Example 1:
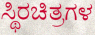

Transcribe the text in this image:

ಸ್ಥಿರಚಿತ್ರಗಳ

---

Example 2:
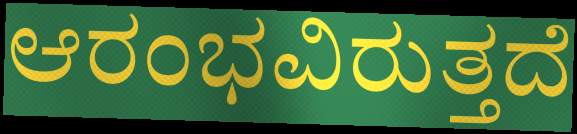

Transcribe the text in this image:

ಆರಂಭವಿರುತ್ತದೆ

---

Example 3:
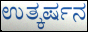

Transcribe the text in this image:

ಉತ್ಕರ್ಷನ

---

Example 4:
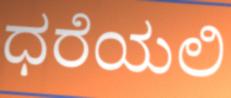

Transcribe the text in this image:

ಧರೆಯಲಿ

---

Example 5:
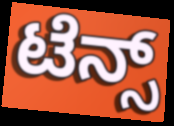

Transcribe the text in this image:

ಟೆನ್ಸ್